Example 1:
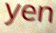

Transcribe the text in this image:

yen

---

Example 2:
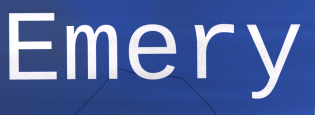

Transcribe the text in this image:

Emery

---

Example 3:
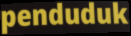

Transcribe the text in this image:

penduduk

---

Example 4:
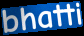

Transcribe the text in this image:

bhatti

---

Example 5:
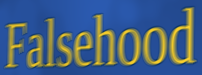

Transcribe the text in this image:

Falsehood